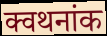
क्वथनांक